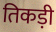
तिकड़ी